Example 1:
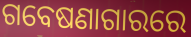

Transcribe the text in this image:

ଗବେଷଣାଗାରରେ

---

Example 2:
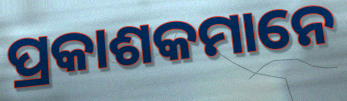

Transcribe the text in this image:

ପ୍ରକାଶକମାନେ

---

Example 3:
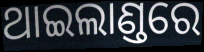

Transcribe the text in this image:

ଥାଇଲାଣ୍ଡରେ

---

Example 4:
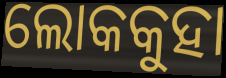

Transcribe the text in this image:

ଲୋକକୁହା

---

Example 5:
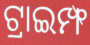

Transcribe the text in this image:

ଟ୍ରାଇମ୍ଫ